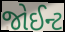
જોઈન્ટ